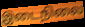
இடைநிலை